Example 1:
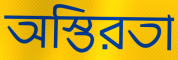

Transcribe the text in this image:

অস্তিরতা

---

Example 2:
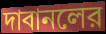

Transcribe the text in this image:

দাবানলের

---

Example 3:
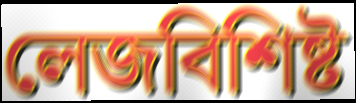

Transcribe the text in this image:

লেজবিশিষ্ট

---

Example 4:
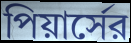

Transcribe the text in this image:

পিয়ার্সের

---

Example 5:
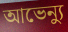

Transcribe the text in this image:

আভেন্যু